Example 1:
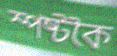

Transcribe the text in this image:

স্পষ্টকৈ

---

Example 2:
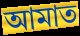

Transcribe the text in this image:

আমাত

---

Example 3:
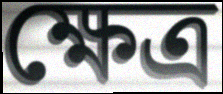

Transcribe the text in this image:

ক্ষেত্ৰ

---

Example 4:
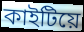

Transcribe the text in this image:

কাইটিয়ে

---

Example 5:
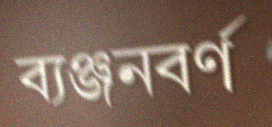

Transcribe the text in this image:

ব্যঞ্জনবৰ্ণ